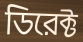
ডিরেক্ট